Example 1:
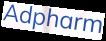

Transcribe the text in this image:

Adpharm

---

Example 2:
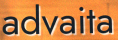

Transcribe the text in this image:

advaita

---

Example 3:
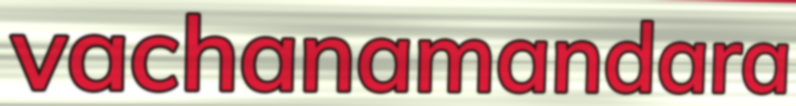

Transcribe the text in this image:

vachanamandara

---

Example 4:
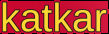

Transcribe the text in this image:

katkar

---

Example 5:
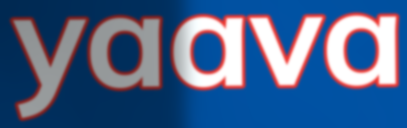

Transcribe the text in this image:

yaava